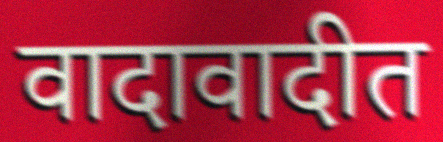
वादावादीत